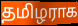
தமிழராக